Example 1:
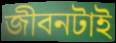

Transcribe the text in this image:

জীবনটাই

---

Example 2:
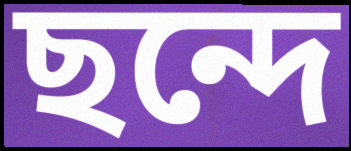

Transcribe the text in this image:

ছন্দে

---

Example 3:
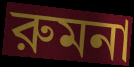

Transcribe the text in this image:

রুমনা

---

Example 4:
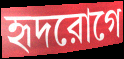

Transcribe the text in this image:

হৃদরোগে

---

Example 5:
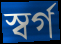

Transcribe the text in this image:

স্বর্গ